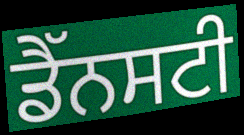
ਡੈੱਨਸਟੀ